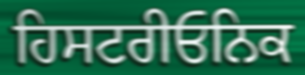
ਹਿਸਟਰੀਓਨਿਕ